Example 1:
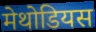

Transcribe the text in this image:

मेथोडियस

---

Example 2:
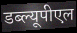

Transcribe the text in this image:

डब्ल्यूपीएल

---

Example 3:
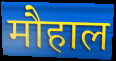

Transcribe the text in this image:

मौहाल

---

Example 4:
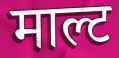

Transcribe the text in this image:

माल्ट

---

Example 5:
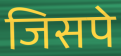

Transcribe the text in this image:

जिसपे